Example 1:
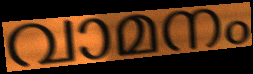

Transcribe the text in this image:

വാമനം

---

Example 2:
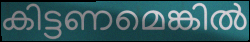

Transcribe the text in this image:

കിട്ടണമെങ്കിൽ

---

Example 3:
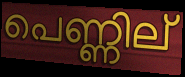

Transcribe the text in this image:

പെണ്ണില്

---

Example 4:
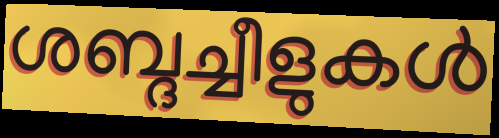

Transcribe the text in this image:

ശബ്ദച്ചീളുകൾ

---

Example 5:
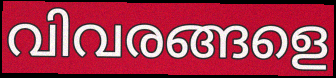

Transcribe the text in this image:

വിവരങ്ങളെ